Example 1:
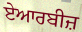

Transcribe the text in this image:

ਏਆਰਬੀਜ਼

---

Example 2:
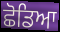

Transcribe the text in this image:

ਛੋਡਿਆ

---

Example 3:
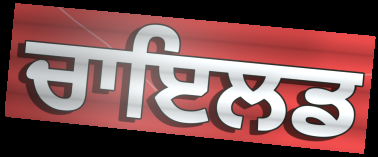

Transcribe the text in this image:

ਚਾਇਲਡ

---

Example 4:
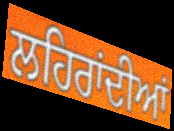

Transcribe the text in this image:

ਲਹਿਰਾਂਦੀਆਂ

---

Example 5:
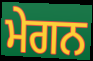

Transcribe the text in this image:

ਮੇਗਨ